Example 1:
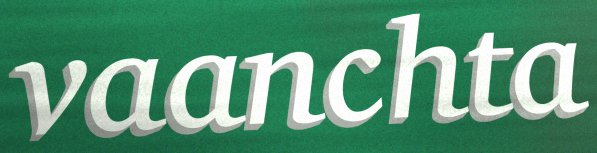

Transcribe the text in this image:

vaanchta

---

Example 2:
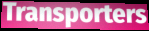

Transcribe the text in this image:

Transporters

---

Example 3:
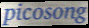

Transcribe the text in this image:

picosong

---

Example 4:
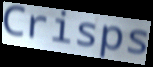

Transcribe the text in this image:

Crisps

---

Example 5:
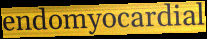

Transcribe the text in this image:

endomyocardial